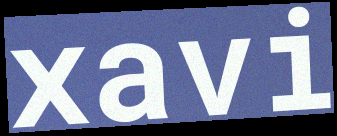
xavi